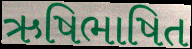
ઋષિભાષિત